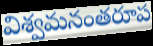
విశ్వమనంతరూప